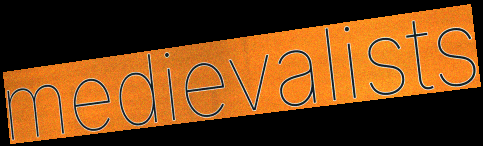
medievalists